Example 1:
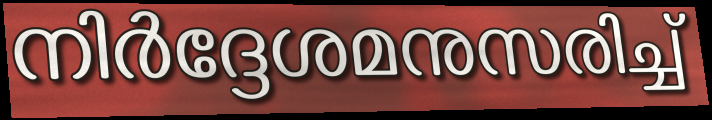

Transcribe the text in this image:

നിർദ്ദേശമനുസരിച്ച്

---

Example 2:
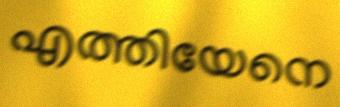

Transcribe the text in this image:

എത്തിയേനെ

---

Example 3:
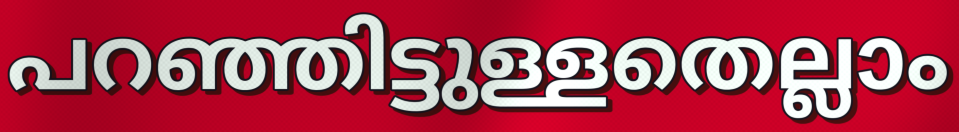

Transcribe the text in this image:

പറഞ്ഞിട്ടുള്ളതെല്ലാം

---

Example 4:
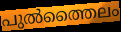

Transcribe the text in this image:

പുൽത്തൈലം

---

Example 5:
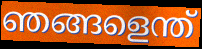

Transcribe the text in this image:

ഞങ്ങളെന്ത്